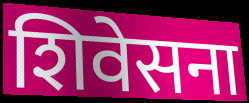
शिवेसना